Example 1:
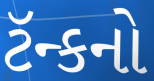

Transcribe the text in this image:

ટૅન્કનો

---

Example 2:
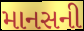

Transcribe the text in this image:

માનસની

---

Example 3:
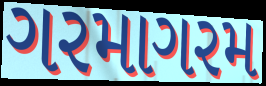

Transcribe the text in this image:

ગરમાગરમ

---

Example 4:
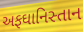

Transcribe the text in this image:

અફઘાનિસ્તાન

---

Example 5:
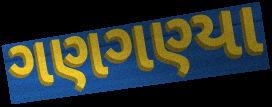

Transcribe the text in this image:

ગણગણ્યા